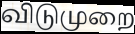
விடுமுறை